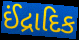
ઈંદ્રાદિક